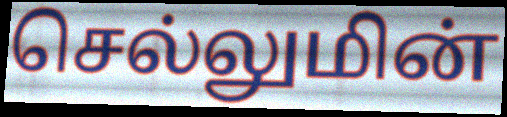
செல்லுமின்